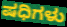
ಷಧಿಗಳು